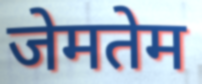
जेमतेम